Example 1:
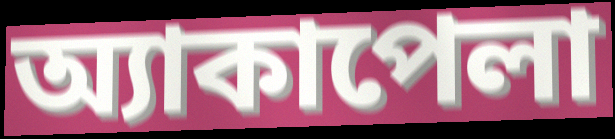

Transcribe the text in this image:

অ্যাকাপেলা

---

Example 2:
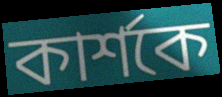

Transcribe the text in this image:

কার্শকে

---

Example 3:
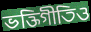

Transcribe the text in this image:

ভক্তিগীতিও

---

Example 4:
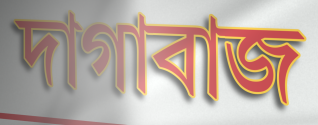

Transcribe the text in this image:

দাগাবাজ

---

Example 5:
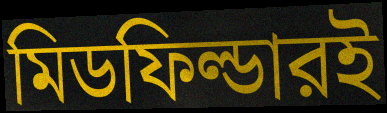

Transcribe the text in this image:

মিডফিল্ডারই